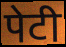
पेटी